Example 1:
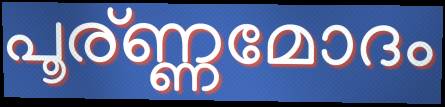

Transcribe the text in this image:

പൂര്ണ്ണമോദം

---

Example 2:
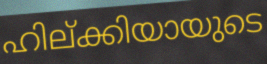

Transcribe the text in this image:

ഹില്ക്കിയായുടെ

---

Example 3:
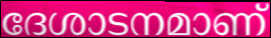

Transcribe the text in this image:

ദേശാടനമാണ്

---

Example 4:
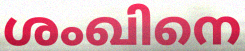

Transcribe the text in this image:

ശംഖിനെ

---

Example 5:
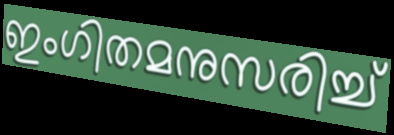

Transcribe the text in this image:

ഇംഗിതമനുസരിച്ച്